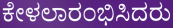
ಕೇಳಲಾರಂಭಿಸಿದರು